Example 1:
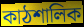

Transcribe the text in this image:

কাঠশালিক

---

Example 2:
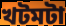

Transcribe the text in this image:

খটমটা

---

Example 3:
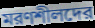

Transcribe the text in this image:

মরণশীলদের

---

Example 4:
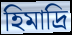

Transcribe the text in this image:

হিমাদ্রি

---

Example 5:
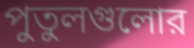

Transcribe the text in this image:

পুতুলগুলোর